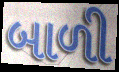
બાળી